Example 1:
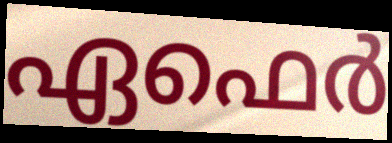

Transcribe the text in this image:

ഏഫെർ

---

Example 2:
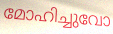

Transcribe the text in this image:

മോഹിച്ചുവോ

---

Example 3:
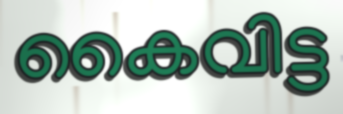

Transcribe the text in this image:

കൈവിട്ട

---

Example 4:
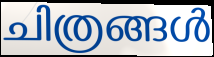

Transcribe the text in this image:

ചിത്രങ്ങൾ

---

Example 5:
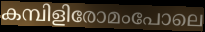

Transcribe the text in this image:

കമ്പിളിരോമംപോലെ